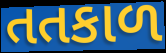
તતકાળ